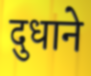
दुधाने